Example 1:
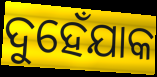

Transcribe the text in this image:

ଦୁହେଁଯାକ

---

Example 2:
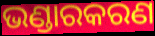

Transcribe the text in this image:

ଭଣ୍ଡାରକରଣ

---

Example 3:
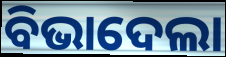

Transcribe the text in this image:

ବିଭାଦେଲା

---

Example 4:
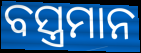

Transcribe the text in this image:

ବସ୍ତ୍ରମାନ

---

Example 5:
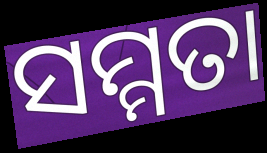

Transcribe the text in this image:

ସମ୍ମତା